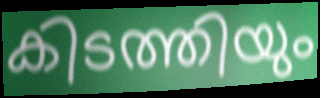
കിടത്തിയും